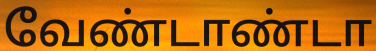
வேண்டாண்டா